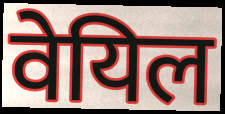
वेयिल